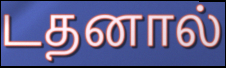
டதனால்